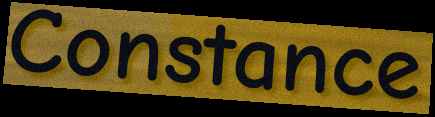
Constance